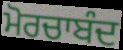
ਮੋਰਚਾਬੰਦ